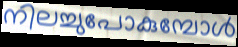
നിലച്ചുപോകുമ്പോൾ